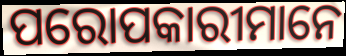
ପରୋପକାରୀମାନେ